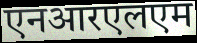
एनआरएलएम